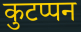
कुटप्पन